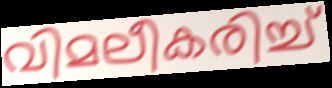
വിമലീകരിച്ച്